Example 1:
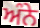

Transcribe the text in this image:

ਅੰਨੇ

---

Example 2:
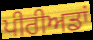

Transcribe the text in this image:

ਪੀਰੀਅਡਾਂ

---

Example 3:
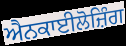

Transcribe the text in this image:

ਐਨਕਾਈਲੋਜ਼ਿੰਗ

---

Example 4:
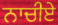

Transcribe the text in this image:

ਨਾਚੀਏ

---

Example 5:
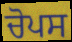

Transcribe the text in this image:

ਚੋਪਸ